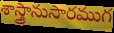
శాస్త్రానుసారముగ